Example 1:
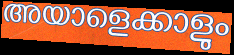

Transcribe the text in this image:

അയാളെക്കാളും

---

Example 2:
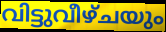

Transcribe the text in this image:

വിട്ടുവീഴ്ചയും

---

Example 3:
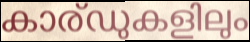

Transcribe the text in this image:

കാര്ഡുകളിലും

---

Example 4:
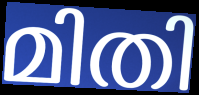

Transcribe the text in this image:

മിതി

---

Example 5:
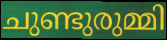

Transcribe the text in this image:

ചുണ്ടുരുമ്മി